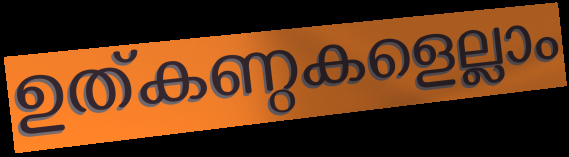
ഉത്കണ്ഠകളെല്ലാം